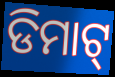
ଡିମାଟ୍